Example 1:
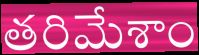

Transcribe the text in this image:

తరిమేశాం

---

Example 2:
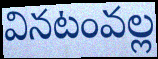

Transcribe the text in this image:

వినటంవల్ల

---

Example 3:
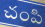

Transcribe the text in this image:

చంపి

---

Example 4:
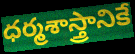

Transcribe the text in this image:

ధర్మశాస్త్రానికే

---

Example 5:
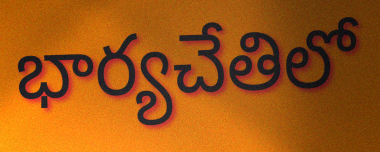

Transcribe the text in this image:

భార్యచేతిలో